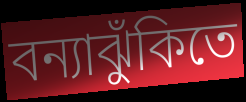
বন্যাঝুঁকিতে